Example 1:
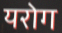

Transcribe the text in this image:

यरोग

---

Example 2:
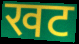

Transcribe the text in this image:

खट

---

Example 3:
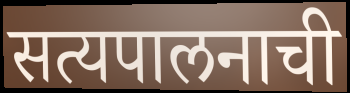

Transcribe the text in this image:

सत्यपालनाची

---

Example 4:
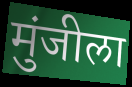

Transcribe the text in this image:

मुंजीला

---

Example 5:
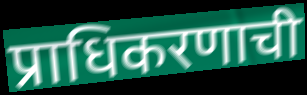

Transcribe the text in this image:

प्राधिकरणाची